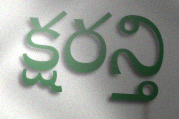
క్షరన్తి